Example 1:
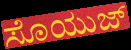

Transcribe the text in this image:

ಸೊಯುಜ್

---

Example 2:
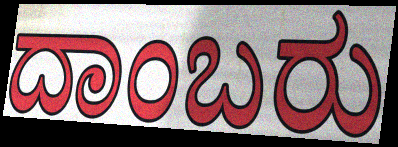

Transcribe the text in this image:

ದಾಂಬರು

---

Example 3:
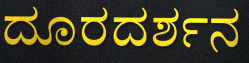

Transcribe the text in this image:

ದೂರದರ್ಶನ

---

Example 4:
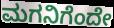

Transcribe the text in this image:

ಮಗನಿಗೆಂದೇ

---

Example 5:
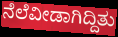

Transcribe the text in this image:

ನೆಲೆವೀಡಾಗಿದ್ದಿತು